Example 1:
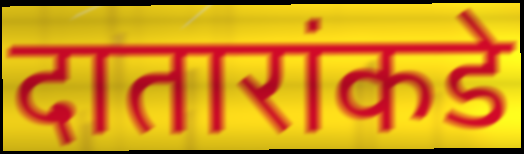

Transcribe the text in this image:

दातारांकडे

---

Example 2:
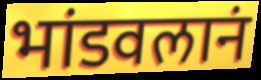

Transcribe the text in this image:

भांडवलानं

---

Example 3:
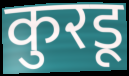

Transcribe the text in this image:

कुरडू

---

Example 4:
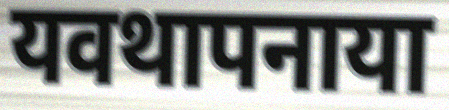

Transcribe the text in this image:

यवथापनाया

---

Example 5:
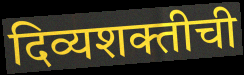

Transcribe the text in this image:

दिव्यशक्तीची